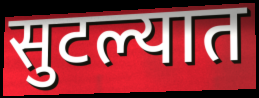
सुटल्यात